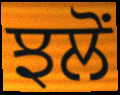
ਝਲੋਂ